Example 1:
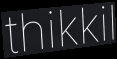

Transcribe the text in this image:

thikkil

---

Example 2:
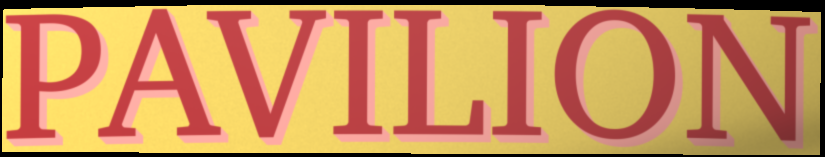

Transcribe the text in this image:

PAVILION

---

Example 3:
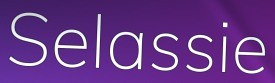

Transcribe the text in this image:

Selassie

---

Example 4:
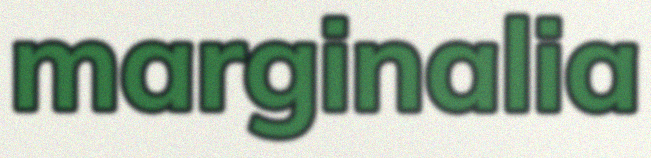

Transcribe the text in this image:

marginalia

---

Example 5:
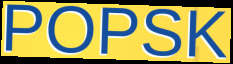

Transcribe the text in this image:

POPSK